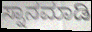
ಸ್ನಾನಮಾಡಿ